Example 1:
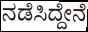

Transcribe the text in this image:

ನಡೆಸಿದ್ದೇನೆ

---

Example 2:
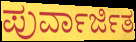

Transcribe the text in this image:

ಪುರ್ವಾರ್ಜಿತ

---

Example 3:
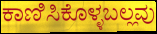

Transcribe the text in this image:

ಕಾಣಿಸಿಕೊಳ್ಳಬಲ್ಲವು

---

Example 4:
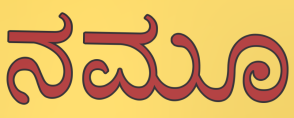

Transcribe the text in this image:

ನಮೂ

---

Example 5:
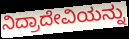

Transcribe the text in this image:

ನಿದ್ರಾದೇವಿಯನ್ನು